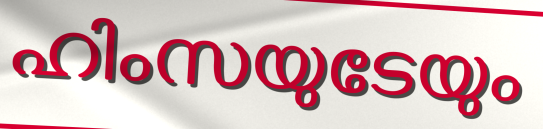
ഹിംസയുടേയും